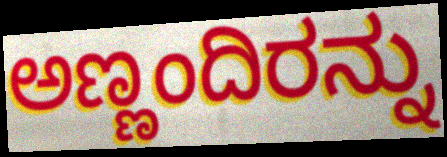
ಅಣ್ಣಂದಿರನ್ನು